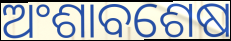
ଅଂଶାବଶେଷ